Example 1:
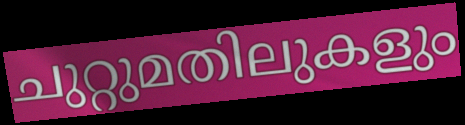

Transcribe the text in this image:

ചുറ്റുമതിലുകളും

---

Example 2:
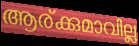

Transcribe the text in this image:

ആര്ക്കുമാവില്ല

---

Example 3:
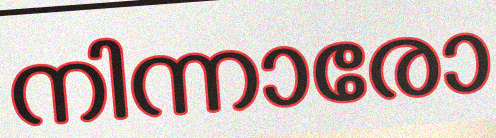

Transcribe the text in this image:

നിന്നാരോ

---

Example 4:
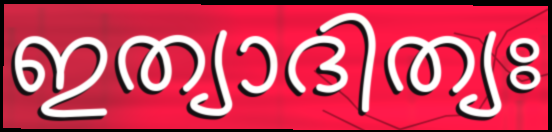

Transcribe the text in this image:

ഇത്യാദിത്യഃ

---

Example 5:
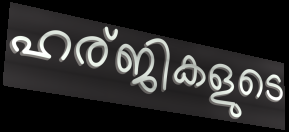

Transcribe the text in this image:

ഹര്ജികളുടെ